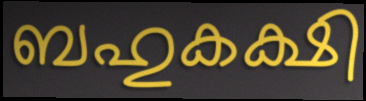
ബഹുകക്ഷി